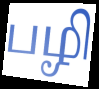
பழி